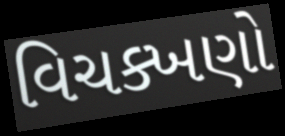
વિચક્ખણો